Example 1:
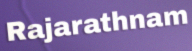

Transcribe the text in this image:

Rajarathnam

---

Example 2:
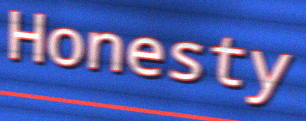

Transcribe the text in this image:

Honesty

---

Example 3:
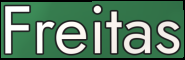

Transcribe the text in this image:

Freitas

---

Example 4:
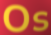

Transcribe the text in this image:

Os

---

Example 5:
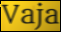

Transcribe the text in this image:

Vaja